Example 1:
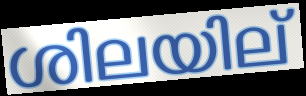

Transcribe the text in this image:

ശിലയില്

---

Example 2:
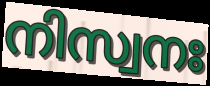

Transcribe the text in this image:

നിസ്വനഃ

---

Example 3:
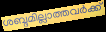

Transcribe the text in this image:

ശബ്ദമില്ലാത്തവർക്ക്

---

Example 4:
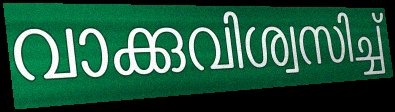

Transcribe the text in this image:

വാക്കുവിശ്വസിച്ച്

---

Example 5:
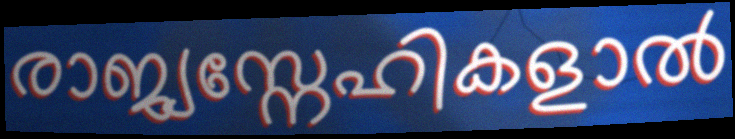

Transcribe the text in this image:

രാജ്യസ്നേഹികളാൽ